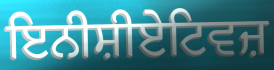
ਇਨੀਸ਼ੀਏਟਿਵਜ਼